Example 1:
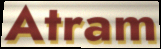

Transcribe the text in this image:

Atram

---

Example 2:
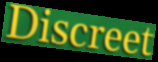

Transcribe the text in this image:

Discreet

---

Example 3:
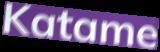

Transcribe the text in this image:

Katame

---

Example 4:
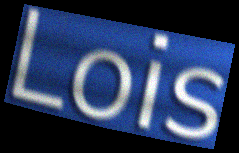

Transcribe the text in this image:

Lois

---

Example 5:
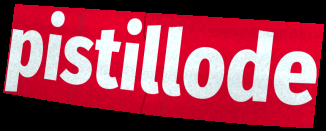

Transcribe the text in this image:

pistillode